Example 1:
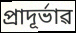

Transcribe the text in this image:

প্ৰাদূৰ্ভাৱ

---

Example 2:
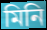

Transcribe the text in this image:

মিনি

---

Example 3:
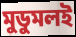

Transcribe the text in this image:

মুডুমলই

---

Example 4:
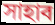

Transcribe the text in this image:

সাহাব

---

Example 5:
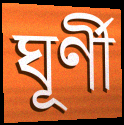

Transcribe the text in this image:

ঘূৰ্ণী